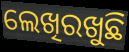
ଲେଖିରଖୁଛି